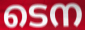
ടെന